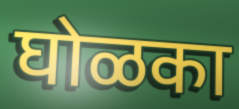
घोळका